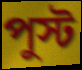
পুস্ট